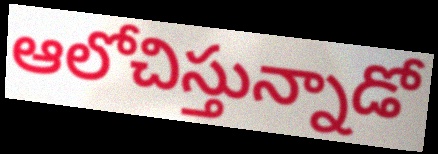
ఆలోచిస్తున్నాడో